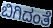
ಬಿಗಿದಂತೆ